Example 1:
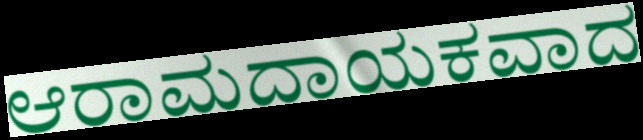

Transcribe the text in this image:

ಆರಾಮದಾಯಕವಾದ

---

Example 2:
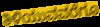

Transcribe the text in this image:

ತಿಳಿಯುವವರೆಗೂ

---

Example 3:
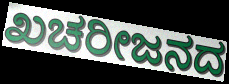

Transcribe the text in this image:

ಖಚರೀಜನದ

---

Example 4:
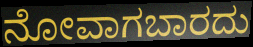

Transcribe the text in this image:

ನೋವಾಗಬಾರದು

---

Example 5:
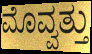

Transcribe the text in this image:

ಮೊವ್ವತ್ತು